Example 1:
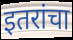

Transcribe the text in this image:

इतरांचा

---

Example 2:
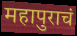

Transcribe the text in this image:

महापुराचं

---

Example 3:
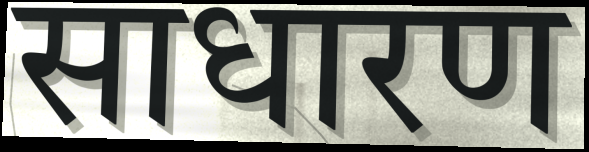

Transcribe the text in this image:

साधारण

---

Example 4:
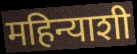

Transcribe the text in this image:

महिन्याशी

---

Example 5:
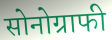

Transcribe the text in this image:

सोनोग्राफी